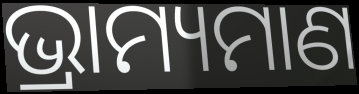
ଭ୍ରାମ୍ୟମାଣ